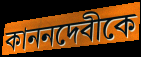
কাননদেবীকে